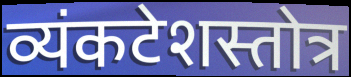
व्यंकटेशस्तोत्र